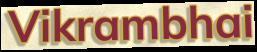
Vikrambhai